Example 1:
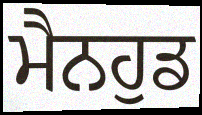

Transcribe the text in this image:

ਮੈਨਹੁਡ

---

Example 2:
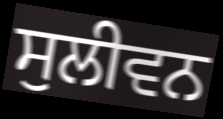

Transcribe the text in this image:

ਸੁਲੀਵਨ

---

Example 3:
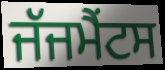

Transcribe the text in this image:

ਜੱਜਮੈਂਟਸ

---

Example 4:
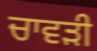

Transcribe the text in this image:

ਚਾਵੜੀ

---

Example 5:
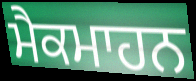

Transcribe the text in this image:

ਮੈਕਮਾਹਨ